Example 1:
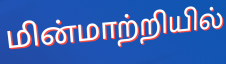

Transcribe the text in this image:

மின்மாற்றியில்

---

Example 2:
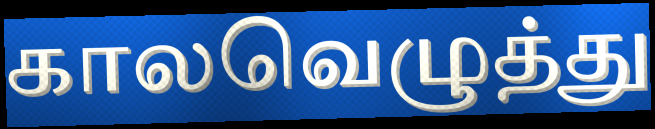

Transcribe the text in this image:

காலவெழுத்து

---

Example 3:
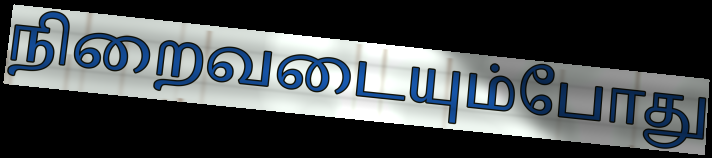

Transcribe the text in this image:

நிறைவடையும்போது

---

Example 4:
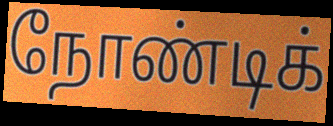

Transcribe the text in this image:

நோண்டிக்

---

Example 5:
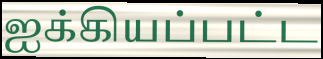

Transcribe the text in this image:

ஐக்கியப்பட்ட